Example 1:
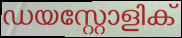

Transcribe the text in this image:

ഡയസ്റ്റോളിക്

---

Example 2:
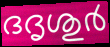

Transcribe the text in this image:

ദദൃശുർ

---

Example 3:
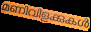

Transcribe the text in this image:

മണിവിളക്കുകൾ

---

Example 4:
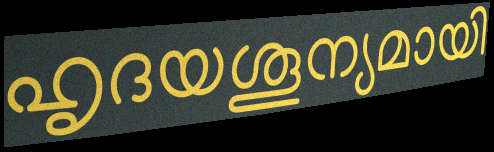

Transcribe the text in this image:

ഹൃദയശൂന്യമായി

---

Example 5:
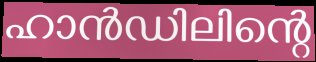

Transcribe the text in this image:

ഹാൻഡിലിന്റെ